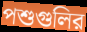
পশুগুলির